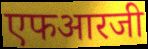
एफआरजी